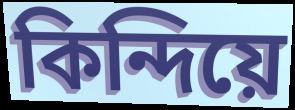
কিন্দিয়ে